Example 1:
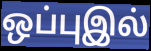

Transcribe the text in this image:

ஒப்புஇல்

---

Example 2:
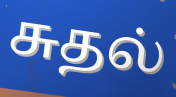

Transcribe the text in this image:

சுதல்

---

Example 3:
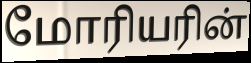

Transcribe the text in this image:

மோரியரின்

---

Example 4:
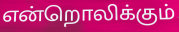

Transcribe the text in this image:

என்றொலிக்கும்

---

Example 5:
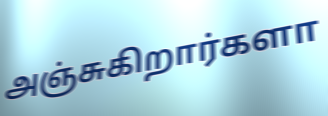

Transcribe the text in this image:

அஞ்சுகிறார்களா